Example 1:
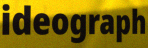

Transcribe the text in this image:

ideograph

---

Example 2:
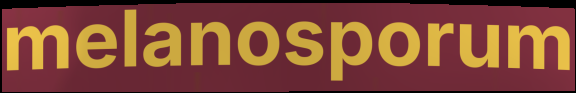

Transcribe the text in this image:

melanosporum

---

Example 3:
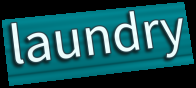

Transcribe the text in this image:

laundry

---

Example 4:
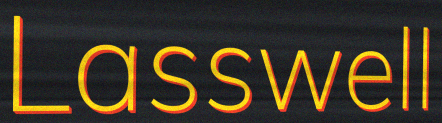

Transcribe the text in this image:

Lasswell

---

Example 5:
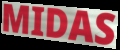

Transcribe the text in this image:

MIDAS